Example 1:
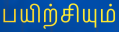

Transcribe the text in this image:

பயிற்சியும்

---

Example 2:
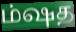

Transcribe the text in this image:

ம்ஷத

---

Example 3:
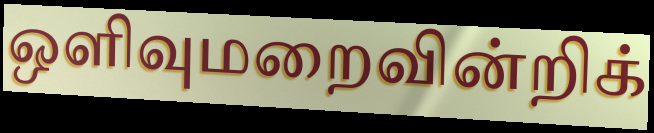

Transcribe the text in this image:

ஒளிவுமறைவின்றிக்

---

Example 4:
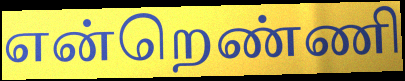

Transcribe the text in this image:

என்றெண்ணி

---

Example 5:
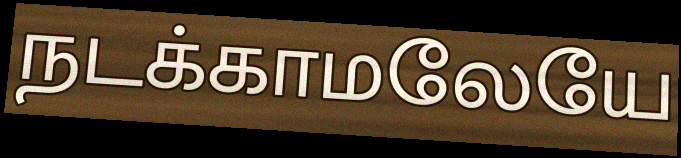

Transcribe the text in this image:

நடக்காமலேயே